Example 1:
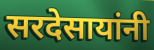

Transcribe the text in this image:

सरदेसायांनी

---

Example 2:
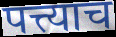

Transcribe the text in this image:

पत्त्याच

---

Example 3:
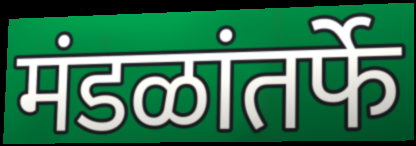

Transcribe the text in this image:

मंडळांतर्फे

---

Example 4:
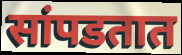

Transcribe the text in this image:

सांपडतात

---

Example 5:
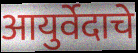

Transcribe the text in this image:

आयुर्वेदाचे